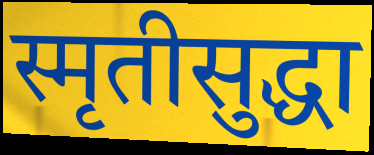
स्मृतीसुद्धा